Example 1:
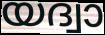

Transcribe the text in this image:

യദ്വാ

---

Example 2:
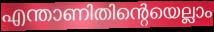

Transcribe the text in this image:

എന്താണിതിന്റെയെല്ലാം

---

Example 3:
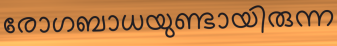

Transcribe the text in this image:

രോഗബാധയുണ്ടായിരുന്ന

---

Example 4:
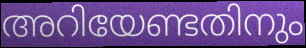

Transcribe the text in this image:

അറിയേണ്ടതിനും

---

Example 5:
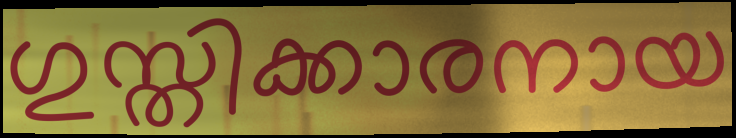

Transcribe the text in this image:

ഗുസ്തിക്കാരനായ